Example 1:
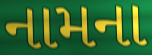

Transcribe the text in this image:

નામના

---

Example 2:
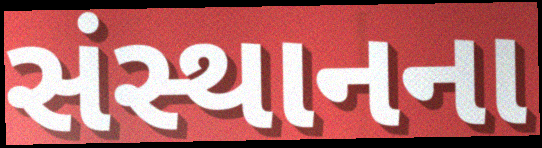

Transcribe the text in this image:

સંસ્થાનના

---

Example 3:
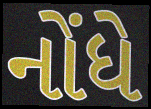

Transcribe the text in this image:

નોંધે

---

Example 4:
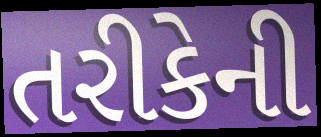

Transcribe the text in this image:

તરીકેની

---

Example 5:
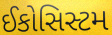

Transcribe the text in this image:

ઈકોસિસ્ટમ